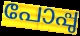
പോപ്പു